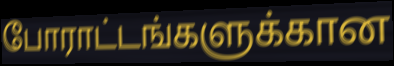
போராட்டங்களுக்கான